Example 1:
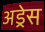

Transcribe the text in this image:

अड्रेस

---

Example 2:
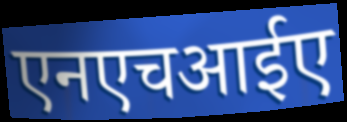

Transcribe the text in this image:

एनएचआईए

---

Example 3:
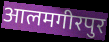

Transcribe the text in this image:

आलमगीरपुर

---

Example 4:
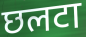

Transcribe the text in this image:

छलटा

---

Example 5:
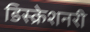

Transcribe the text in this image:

डिस्क्रेशनरी